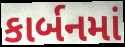
કાર્બનમાં